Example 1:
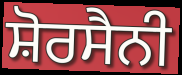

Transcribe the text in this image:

ਸ਼ੋਰਸੈਨੀ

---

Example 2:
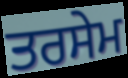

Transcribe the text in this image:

ਤਰਸੇਮ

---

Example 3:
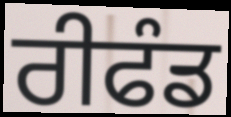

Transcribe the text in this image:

ਰੀਫੰਡ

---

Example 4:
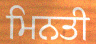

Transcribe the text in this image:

ਮਿਨਤੀ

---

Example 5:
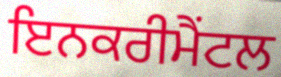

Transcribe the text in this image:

ਇਨਕਰੀਮੈਂਟਲ